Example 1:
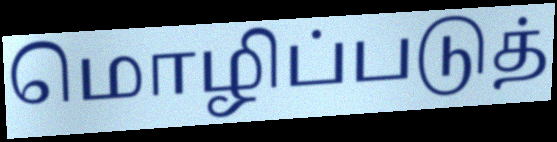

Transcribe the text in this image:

மொழிப்படுத்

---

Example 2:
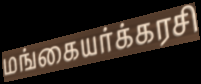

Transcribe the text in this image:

மங்கையர்க்கரசி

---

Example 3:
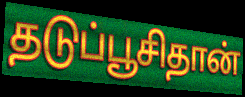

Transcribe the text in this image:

தடுப்பூசிதான்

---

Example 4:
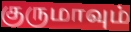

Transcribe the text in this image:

குருமாவும்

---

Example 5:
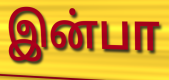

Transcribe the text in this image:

இன்பா